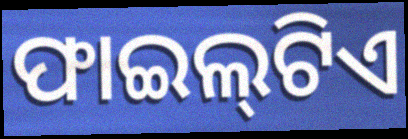
ଫାଇଲ୍‌ଟିଏ